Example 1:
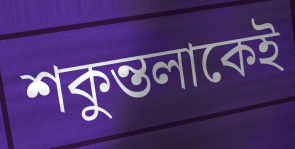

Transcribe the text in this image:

শকুন্তলাকেই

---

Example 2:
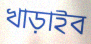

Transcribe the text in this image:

খাড়াইব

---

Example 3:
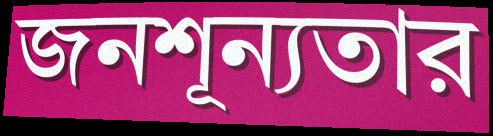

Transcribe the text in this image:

জনশূন্যতার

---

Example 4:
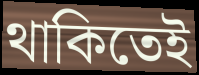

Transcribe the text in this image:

থাকিতেই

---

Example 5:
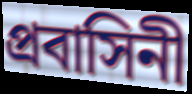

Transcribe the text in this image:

প্রবাসিনী